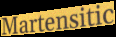
Martensitic